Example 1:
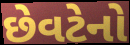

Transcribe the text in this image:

છેવટેનો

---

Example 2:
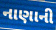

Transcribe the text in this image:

નાણાની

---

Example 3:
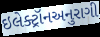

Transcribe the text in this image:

ઇલેક્ટ્રૉનઅનુરાગી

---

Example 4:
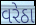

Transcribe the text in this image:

વરેઠા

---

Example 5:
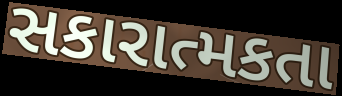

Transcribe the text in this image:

સકારાત્મકતા